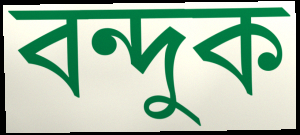
বন্দুক